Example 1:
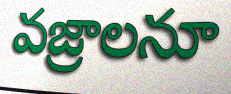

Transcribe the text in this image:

వజ్రాలనూ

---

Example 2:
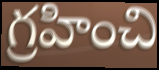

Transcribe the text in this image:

గ్రహించి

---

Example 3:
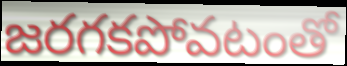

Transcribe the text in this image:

జరగకపోవటంతో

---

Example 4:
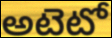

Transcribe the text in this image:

అటెటో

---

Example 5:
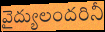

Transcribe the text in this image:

వైద్యులందరినీ